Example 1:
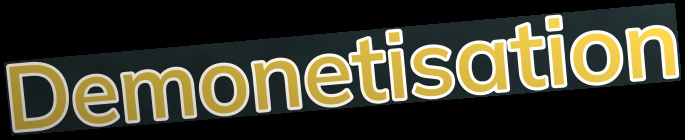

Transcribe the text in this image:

Demonetisation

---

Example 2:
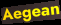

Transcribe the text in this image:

Aegean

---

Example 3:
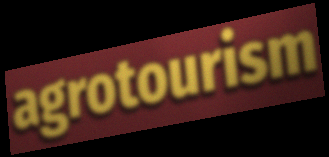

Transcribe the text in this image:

agrotourism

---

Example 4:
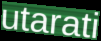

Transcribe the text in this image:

utarati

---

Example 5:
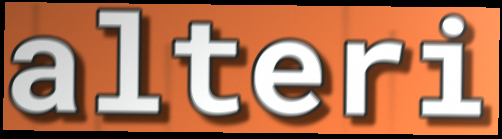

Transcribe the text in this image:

alteri